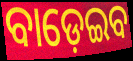
ବାଡ଼େଇବ